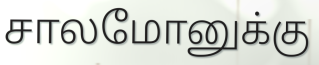
சாலமோனுக்கு